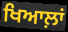
ਖਿਆਲ਼ਾਂ